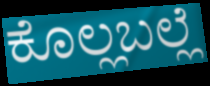
ಕೊಲ್ಲಬಲ್ಲೆ